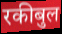
रकीबुल